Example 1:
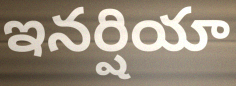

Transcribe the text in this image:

ఇనర్షియా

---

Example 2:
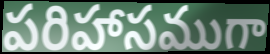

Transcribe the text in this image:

పరిహాసముగా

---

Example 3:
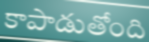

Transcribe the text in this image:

కాపాడుతోంది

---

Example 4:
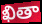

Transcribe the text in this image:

ఖితా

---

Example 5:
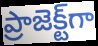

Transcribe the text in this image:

ప్రాజెక్ట్‌గా